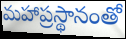
మహాప్రస్థానంతో